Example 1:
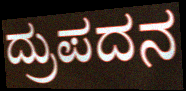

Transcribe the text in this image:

ದ್ರುಪದನ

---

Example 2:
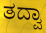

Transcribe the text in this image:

ತದ್ವಾ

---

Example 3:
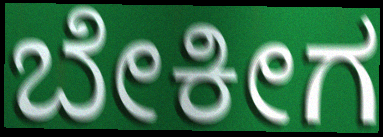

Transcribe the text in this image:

ಬೇಕೀಗ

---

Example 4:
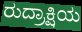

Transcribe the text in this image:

ರುದ್ರಾಕ್ಷಿಯ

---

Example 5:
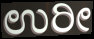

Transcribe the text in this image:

ಉರೀ